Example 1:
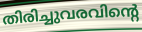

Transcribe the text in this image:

തിരിച്ചുവരവിന്റെ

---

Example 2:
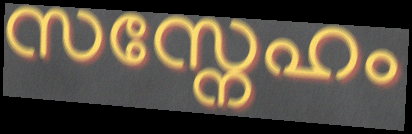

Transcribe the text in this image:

സസ്നേഹം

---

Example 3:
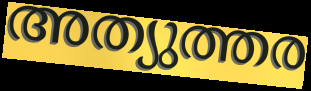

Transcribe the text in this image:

അത്യുത്തര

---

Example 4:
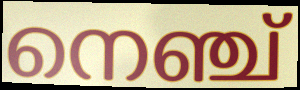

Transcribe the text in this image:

നെഞ്ച്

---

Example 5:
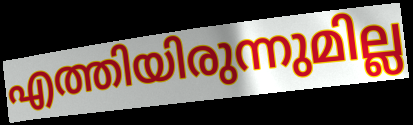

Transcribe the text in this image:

എത്തിയിരുന്നുമില്ല